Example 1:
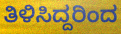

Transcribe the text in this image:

ತಿಳಿಸಿದ್ದರಿಂದ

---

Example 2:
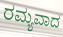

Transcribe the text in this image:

ರಮ್ಯವಾದ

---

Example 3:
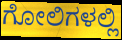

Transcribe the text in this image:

ಗೋಲಿಗಳಲ್ಲಿ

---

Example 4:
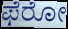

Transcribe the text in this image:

ಫೆರೋ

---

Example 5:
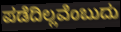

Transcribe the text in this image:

ಪಡೆದಿಲ್ಲವೆಂಬುದು